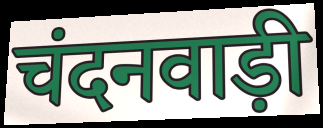
चंदनवाड़ी